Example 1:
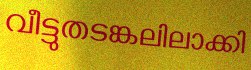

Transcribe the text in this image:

വീട്ടുതടങ്കലിലാക്കി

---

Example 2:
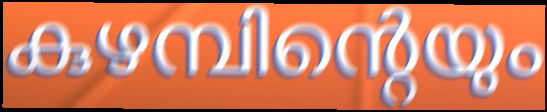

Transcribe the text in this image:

കുഴമ്പിന്റെയും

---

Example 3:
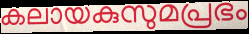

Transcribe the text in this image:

കലായകുസുമപ്രഭം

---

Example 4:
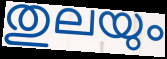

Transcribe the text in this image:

തുലയും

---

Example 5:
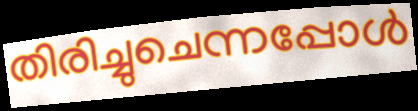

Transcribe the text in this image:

തിരിച്ചുചെന്നപ്പോൾ